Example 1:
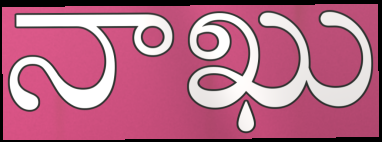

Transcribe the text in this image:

నాఖు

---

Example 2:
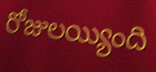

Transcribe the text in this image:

రోజులయ్యింది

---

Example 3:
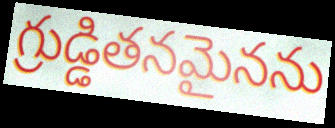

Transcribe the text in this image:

గ్రుడ్డితనమైనను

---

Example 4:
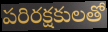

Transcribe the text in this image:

పరిరక్షకులతో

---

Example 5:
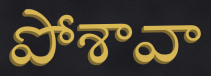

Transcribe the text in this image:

పోశావా